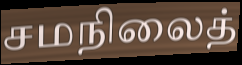
சமநிலைத்